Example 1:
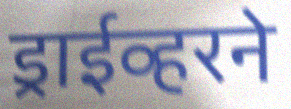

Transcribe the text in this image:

ड्राईव्हरने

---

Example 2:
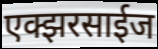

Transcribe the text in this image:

एक्झरसाईज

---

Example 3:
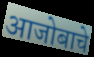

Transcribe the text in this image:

आजोबाचे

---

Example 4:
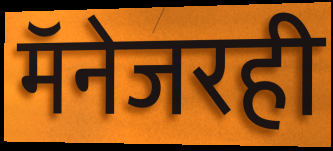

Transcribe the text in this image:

मॅनेजरही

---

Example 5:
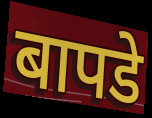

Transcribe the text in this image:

बापडे